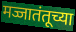
मज्जातंतूच्या